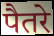
पैतरे